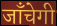
जाँचेगी